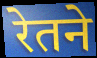
रेतने